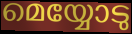
മെയ്യോടു